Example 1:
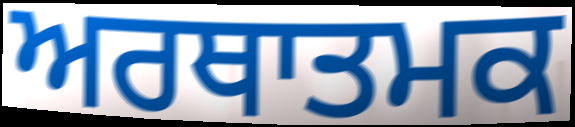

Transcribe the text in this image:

ਅਰਥਾਤਮਕ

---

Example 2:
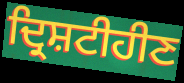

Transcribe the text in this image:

ਦ੍ਰਿਸ਼ਟੀਹੀਣ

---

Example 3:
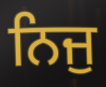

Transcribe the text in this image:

ਨਿਜੁ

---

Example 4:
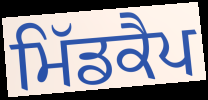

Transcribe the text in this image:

ਮਿੱਡਕੈਪ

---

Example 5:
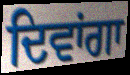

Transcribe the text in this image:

ਦਿਵਾਂਗਾ